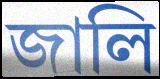
জালি